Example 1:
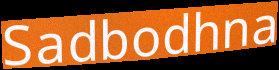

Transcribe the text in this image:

Sadbodhna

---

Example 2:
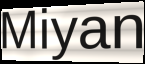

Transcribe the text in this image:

Miyan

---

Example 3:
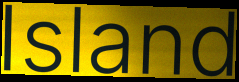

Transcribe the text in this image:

Island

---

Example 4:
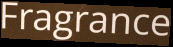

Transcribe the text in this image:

Fragrance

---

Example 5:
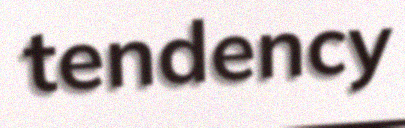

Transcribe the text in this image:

tendency